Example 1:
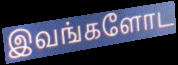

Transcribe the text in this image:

இவங்களோட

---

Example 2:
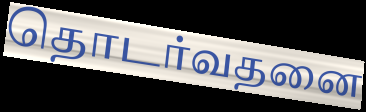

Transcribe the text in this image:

தொடர்வதனை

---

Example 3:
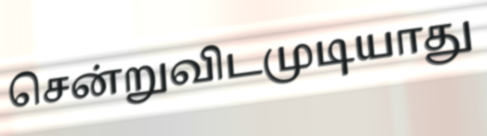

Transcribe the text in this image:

சென்றுவிடமுடியாது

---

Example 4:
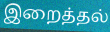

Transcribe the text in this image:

இறைத்தல்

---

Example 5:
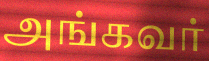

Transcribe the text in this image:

அங்கவர்